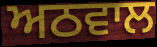
ਅਠਵਾਲ